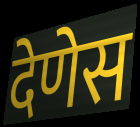
देणेस